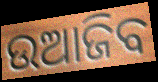
ଉଆଜିବ